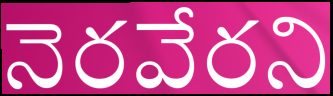
నెరవేరని